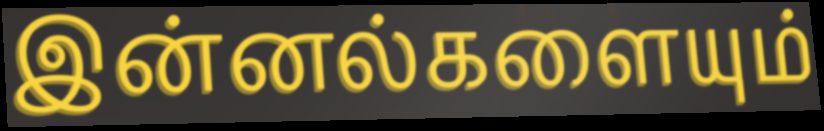
இன்னல்களையும்